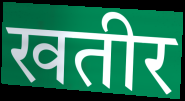
खतीर